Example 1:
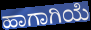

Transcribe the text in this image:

ಹಾಗಾಗಿಯೆ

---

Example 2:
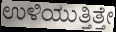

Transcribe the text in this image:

ಉಳಿಯುತ್ತಿತ್ತೇ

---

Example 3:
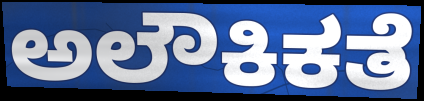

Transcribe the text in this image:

ಅಲೌಕಿಕತೆ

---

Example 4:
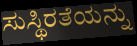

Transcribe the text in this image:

ಸುಸ್ಥಿರತೆಯನ್ನು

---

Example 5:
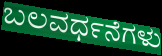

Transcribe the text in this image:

ಬಲವರ್ಧನೆಗಳು